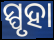
ସ୍ପୃହା